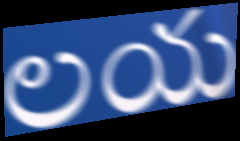
లయ